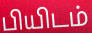
பியிடம்